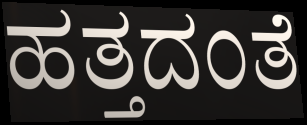
ಹತ್ತದಂತೆ